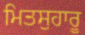
ਮਿਤਸੁਹਾਰੂ